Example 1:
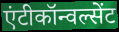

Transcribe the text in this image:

एंटीकॉन्वल्सेंट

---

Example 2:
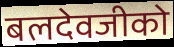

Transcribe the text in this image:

बलदेवजीको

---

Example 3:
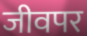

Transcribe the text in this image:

जीवपर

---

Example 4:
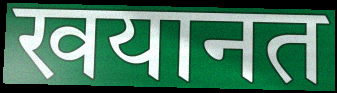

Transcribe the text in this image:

खयानत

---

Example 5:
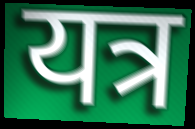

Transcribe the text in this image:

यत्र